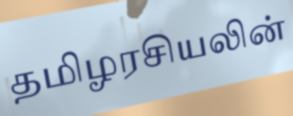
தமிழரசியலின்